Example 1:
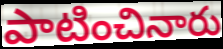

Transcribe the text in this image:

పాటించినారు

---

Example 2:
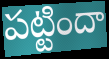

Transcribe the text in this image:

పట్టిందా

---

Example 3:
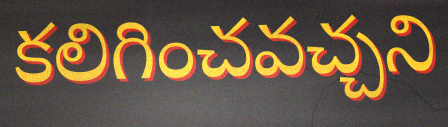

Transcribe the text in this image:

కలిగించవచ్చని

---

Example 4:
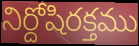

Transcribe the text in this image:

నిర్దోషిరక్తము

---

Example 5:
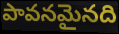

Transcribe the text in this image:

పావనమైనది